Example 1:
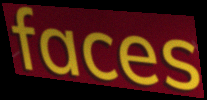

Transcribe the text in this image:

faces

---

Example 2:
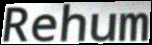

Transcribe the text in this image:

Rehum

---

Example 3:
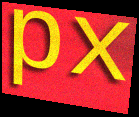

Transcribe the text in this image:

px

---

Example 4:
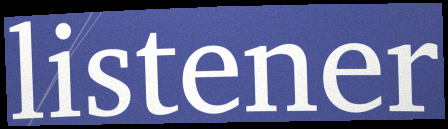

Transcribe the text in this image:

listener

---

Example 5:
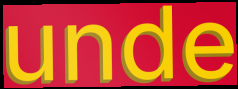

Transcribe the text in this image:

unde